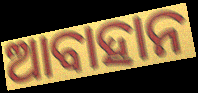
ଆବାହାନ